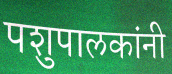
पशुपालकांनी